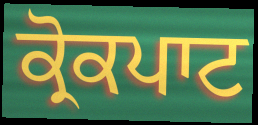
ਕ੍ਰੋਕਪਾਟ